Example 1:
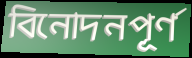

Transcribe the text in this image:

বিনোদনপূর্ণ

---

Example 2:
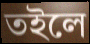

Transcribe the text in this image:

তইলে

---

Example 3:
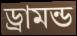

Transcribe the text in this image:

ড্রামন্ড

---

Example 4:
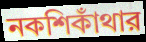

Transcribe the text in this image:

নকশিকাঁথার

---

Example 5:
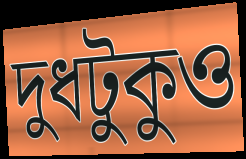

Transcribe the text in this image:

দুধটুকুও